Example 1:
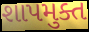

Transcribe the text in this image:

શાપમુક્ત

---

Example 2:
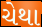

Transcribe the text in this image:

ચેથા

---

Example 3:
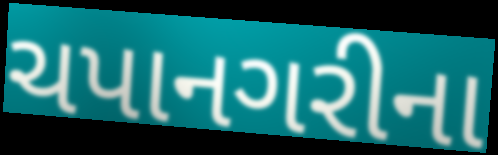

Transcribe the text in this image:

ચપાનગરીના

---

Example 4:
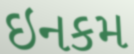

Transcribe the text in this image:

ઇનકમ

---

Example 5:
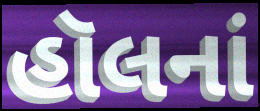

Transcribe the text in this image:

હૉલનાં